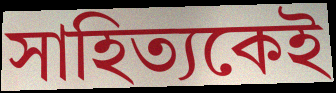
সাহিত্য়কেই